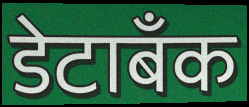
डेटाबँक